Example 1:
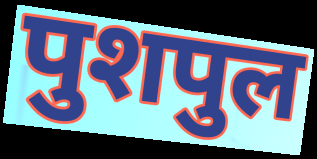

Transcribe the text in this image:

पुशपुल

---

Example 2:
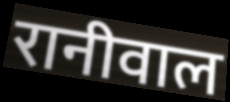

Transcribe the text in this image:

रानीवाल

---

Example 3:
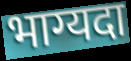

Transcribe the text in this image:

भाग्यदा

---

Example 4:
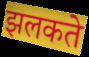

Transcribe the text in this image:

झलकते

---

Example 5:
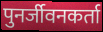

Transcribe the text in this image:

पुनर्जीवनकर्ता